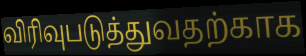
விரிவுபடுத்துவதற்காக